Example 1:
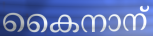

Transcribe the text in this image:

കൈനാന്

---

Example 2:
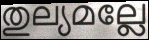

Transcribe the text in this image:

തുല്യമല്ലേ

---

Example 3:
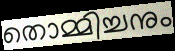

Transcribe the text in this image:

തൊമ്മിച്ചനും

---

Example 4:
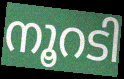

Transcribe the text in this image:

നൂറടി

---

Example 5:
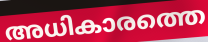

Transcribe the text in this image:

അധികാരത്തെ